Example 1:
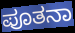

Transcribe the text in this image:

ಪೂತನಾ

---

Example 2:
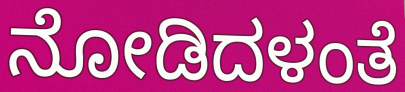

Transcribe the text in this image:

ನೋಡಿದಳಂತೆ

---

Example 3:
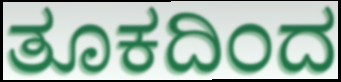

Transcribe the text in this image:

ತೂಕದಿಂದ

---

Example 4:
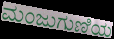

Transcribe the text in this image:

ಮಂಜುಗುಣಿಯ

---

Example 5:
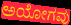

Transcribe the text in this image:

ಅಯೋಗವು